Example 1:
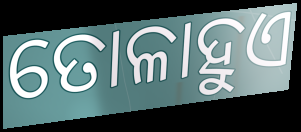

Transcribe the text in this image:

ତୋଳାହୁଏ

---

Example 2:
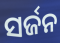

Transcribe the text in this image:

ସର୍ଜନ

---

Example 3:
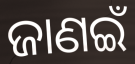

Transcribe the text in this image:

ଜାଣଇଁ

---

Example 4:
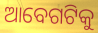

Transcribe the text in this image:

ଆବେଗଟିକୁ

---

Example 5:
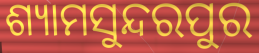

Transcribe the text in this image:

ଶ୍ୟାମସୁନ୍ଦରପୁର